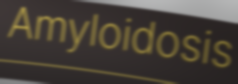
Amyloidosis